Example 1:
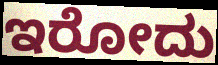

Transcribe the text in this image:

ಇರೋದು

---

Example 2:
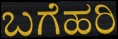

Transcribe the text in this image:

ಬಗೆಹರಿ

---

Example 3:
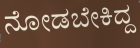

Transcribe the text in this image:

ನೋಡಬೇಕಿದ್ದ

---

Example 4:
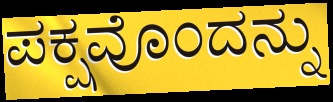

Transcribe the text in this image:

ಪಕ್ಷವೊಂದನ್ನು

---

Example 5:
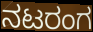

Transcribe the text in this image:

ನಟರಂಗ